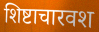
शिष्टाचारवश